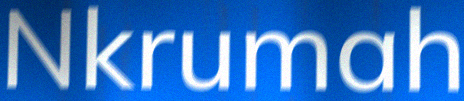
Nkrumah